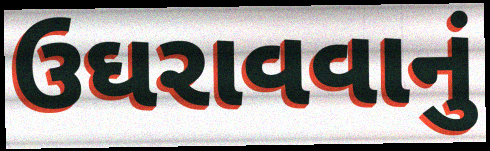
ઉઘરાવવાનું